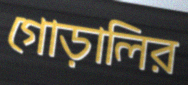
গোড়ালির